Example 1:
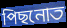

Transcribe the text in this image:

পিছনোত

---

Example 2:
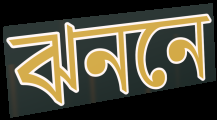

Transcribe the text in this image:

ঝননে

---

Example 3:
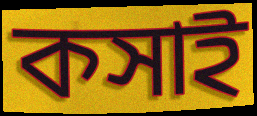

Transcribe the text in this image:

কসাই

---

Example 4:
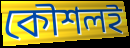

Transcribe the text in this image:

কৌশলই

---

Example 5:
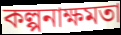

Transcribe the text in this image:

কল্পনাক্ষমতা